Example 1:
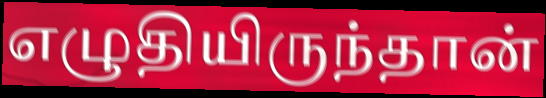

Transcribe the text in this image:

எழுதியிருந்தான்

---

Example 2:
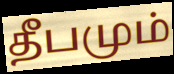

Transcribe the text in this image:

தீபமும்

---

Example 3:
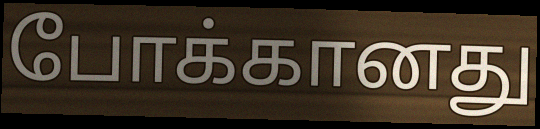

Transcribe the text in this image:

போக்கானது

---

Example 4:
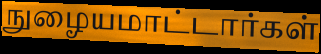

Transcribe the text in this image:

நுழையமாட்டார்கள்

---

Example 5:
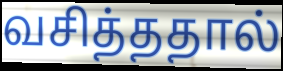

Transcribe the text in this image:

வசித்ததால்